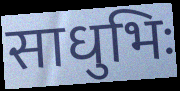
साधुभिः